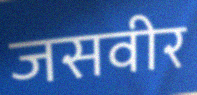
जसवीर